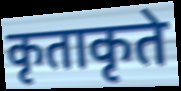
कृताकृते